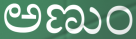
ಅಣುಂ